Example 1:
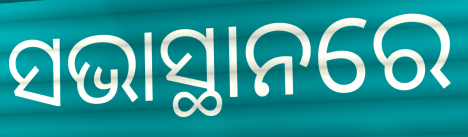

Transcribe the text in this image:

ସଭାସ୍ଥାନରେ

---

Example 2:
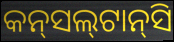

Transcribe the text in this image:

କନ୍‌ସଲ୍‌ଟାନ୍‌ସି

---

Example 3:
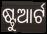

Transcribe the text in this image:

ଷ୍ଟୁଆର୍ଟ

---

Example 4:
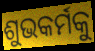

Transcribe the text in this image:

ଶୁଭକର୍ମକୁ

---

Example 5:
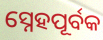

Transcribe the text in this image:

ସ୍ନେହପୂର୍ବକ